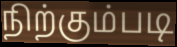
நிற்கும்படி